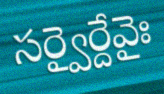
సర్వైర్దేవైః